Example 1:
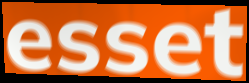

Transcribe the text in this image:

esset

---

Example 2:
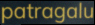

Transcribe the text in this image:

patragalu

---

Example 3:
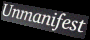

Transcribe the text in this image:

Unmanifest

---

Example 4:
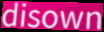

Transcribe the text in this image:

disown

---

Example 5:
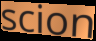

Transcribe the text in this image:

scion